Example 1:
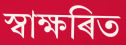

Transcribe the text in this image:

স্বাক্ষৰিত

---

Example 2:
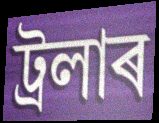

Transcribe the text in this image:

ট্ৰলাৰ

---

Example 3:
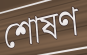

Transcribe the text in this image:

শোষণ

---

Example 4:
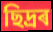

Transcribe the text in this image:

ছিদ্ৰৰ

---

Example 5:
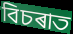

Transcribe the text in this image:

বিচৰাত